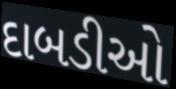
દાબડીઓ